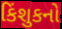
કિંશુકનો